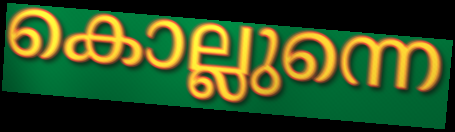
കൊല്ലുന്നെ